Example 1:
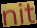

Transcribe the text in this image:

nit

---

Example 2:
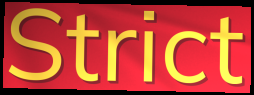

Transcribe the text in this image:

Strict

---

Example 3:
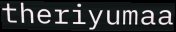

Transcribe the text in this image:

theriyumaa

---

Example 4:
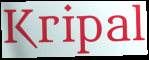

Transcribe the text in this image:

Kripal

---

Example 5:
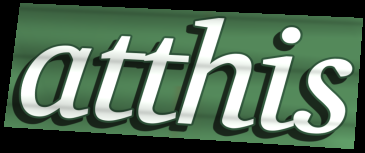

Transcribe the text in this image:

atthis